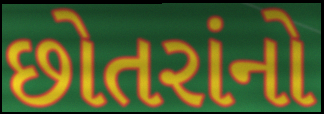
છોતરાંનો